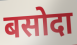
बसोदा